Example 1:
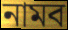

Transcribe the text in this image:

নামব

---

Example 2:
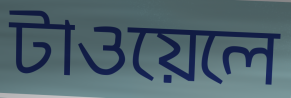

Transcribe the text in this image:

টাওয়েলে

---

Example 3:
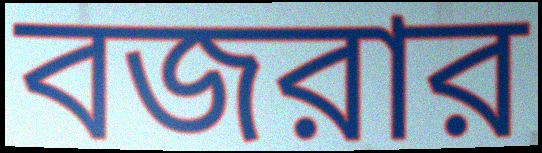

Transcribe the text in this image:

বজরার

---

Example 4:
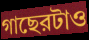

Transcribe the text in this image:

গাছেরটাও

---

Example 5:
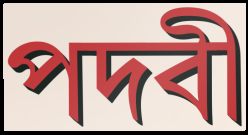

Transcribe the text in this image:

পদবী